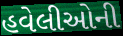
હવેલીઓની